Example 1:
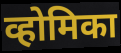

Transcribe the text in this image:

व्होमिका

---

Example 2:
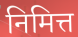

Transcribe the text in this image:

निमित्त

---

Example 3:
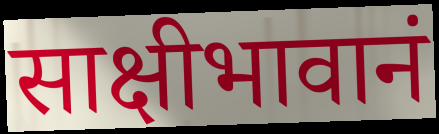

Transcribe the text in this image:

साक्षीभावानं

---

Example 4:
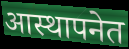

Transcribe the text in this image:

आस्थापनेत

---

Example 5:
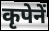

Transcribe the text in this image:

कृपेनें